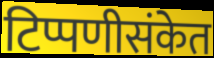
टिप्पणीसंकेत